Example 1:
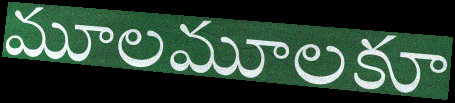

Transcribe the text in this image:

మూలమూలకూ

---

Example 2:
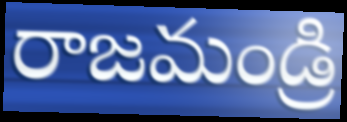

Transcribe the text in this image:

రాజమండ్రి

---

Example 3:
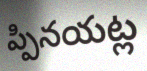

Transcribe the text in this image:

ప్పినయట్ల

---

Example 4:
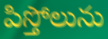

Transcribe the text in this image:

పిస్తోలును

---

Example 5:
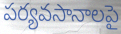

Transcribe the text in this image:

పర్యవసానాలపై